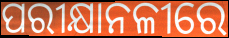
ପରୀକ୍ଷାନଳୀରେ